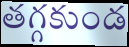
తగ్గకుండ